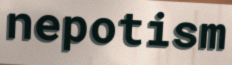
nepotism